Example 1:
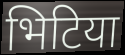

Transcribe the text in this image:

भिटिया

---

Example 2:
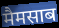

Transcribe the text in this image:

मैमसाब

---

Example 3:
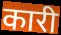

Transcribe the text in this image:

कारी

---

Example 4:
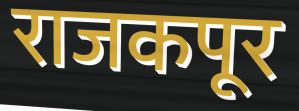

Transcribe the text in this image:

राजकपूर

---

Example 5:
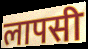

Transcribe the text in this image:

लापसी